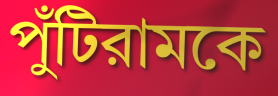
পুঁটিরামকে